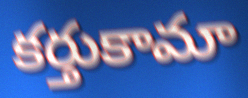
కర్తుకామా